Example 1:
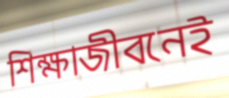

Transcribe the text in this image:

শিক্ষাজীবনেই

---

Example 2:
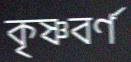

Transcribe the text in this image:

কৃষ্ণবর্ণ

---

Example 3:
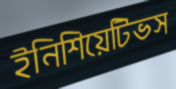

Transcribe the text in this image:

ইনিশিয়েটিভস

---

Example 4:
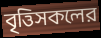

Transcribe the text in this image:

বৃত্তিসকলের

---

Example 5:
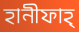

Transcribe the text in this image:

হানীফাহ্